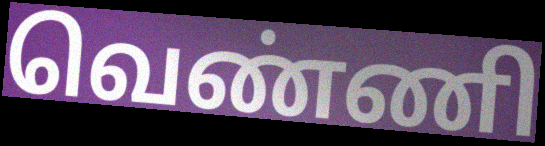
வெண்ணி